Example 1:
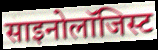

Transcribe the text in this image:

साइनोलॉजिस्ट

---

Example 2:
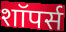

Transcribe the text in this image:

शॉपर्स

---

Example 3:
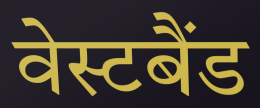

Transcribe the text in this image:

वेस्टबैंड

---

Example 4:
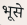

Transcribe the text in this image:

भूसे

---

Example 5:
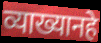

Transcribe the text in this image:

व्याख्यानहे